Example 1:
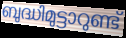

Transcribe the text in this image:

ബുദ്ധിമുട്ടാറുണ്ട്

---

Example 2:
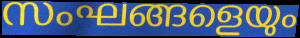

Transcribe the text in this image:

സംഘങ്ങളെയും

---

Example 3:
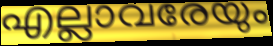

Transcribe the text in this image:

എല്ലാവരേയും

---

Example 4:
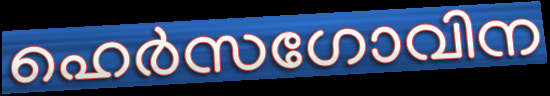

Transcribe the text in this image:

ഹെർസഗോവിന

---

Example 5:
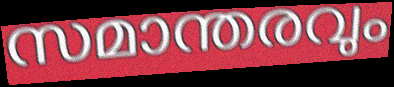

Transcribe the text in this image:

സമാന്തരവും